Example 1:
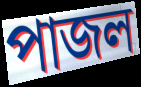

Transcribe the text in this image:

পাজল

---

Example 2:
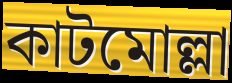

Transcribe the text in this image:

কাটমোল্লা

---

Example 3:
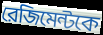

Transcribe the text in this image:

রেজিমেন্টকে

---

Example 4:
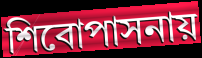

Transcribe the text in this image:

শিবোপাসনায়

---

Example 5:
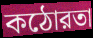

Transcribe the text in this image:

কঠোরতা